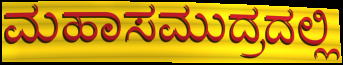
ಮಹಾಸಮುದ್ರದಲ್ಲಿ